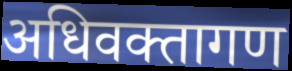
अधिवक्तागण